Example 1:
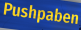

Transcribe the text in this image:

Pushpaben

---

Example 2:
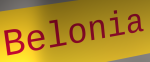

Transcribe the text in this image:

Belonia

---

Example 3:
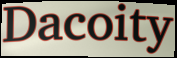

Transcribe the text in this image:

Dacoity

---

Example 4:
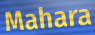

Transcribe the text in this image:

Mahara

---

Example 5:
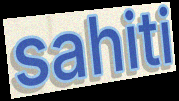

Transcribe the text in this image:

sahiti